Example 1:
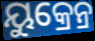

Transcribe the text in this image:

ୟୁକ୍ରେନ୍ର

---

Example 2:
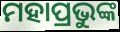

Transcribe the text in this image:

ମହାପ୍ରଭୁଙ୍କ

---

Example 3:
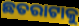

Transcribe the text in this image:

ଛତରାଟାକୁ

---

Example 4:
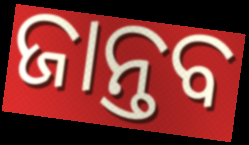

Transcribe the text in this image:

ଜାନ୍ତବ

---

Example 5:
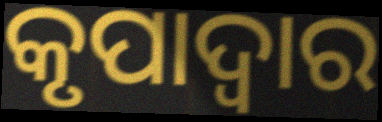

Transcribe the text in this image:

କୃପାଦ୍ଵାର